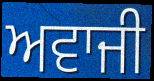
ਅਵਾਜੀ